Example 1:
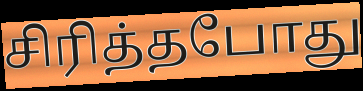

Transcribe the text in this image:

சிரித்தபோது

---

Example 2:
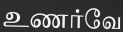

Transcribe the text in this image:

உணர்வே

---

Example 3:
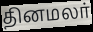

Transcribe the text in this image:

தினமலர்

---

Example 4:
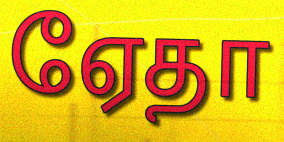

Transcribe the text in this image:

ஏேதா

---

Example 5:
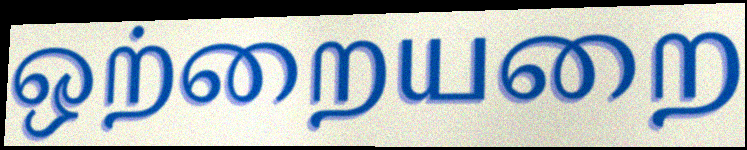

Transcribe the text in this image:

ஒற்றையறை